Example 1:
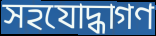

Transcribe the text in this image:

সহযোদ্ধাগণ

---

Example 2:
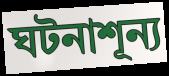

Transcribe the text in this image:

ঘটনাশূন্য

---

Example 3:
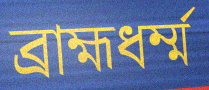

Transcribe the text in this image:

ব্রাহ্মধর্ম্ম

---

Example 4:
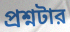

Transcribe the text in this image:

প্রশ্নটার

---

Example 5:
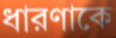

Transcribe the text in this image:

ধারণাকে